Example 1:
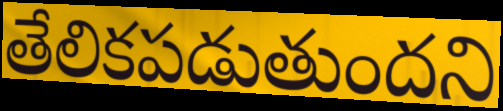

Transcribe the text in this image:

తేలికపడుతుందని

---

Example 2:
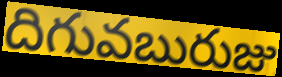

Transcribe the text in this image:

దిగువబురుజు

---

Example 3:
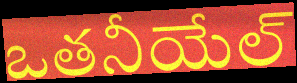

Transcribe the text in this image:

ఒతనీయేల్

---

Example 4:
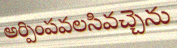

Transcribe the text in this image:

అర్పింపవలసివచ్చెను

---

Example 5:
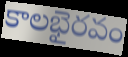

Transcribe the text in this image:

కాలభైరవం